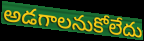
అడగాలనుకోలేదు